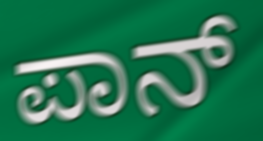
ಪಾನ್